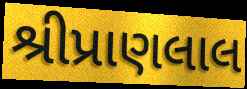
શ્રીપ્રાણલાલ